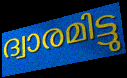
ദ്വാരമിട്ടു